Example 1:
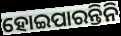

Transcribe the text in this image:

ହୋଇପାରନ୍ତିନି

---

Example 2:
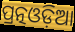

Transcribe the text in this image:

ପ୍ରତ୍ନଓଡ଼ିଆ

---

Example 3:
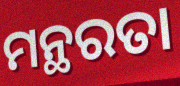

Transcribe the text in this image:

ମନ୍ଥରତା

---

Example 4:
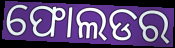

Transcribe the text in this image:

ଫୋଲଡର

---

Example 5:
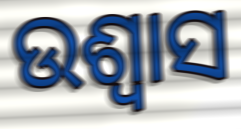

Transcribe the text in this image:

ଉଶ୍ୱାସ